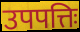
उपपत्तिः